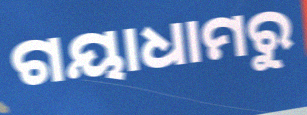
ଗୟାଧାମରୁ